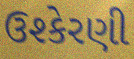
ઉશ્કેરણી